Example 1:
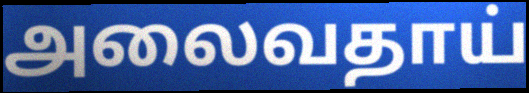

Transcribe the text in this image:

அலைவதாய்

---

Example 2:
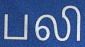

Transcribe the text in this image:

பலி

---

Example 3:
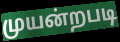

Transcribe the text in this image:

முயன்றபடி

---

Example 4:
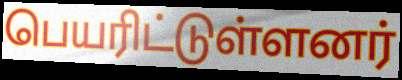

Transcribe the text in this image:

பெயரிட்டுள்ளனர்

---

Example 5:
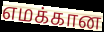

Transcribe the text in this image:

எமக்கான